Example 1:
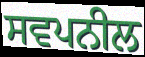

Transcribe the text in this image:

ਸਵਪਨੀਲ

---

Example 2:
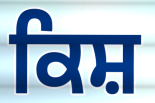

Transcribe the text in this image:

ਕਿਸ਼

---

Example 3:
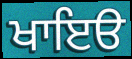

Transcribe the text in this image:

ਖਾਇੳ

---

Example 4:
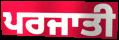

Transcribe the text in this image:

ਪਰਜਾਤੀ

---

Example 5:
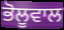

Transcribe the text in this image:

ਭੋਲੂਵਾਲ